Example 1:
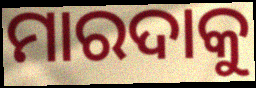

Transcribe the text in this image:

ମାରଦାକୁ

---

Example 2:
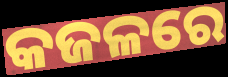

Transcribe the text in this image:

କଜଳରେ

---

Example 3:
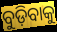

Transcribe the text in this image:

ବୁଡ଼ିବାକୁ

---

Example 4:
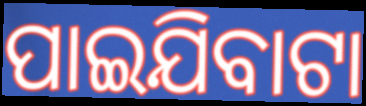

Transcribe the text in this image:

ପାଇଯିବାଟା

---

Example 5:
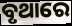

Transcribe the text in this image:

ବୃଥାରେ